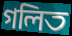
গলিত